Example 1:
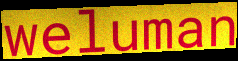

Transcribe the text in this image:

weluman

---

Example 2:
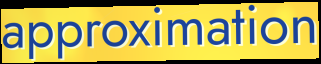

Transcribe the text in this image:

approximation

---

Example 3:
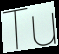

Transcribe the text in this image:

Tu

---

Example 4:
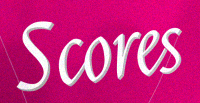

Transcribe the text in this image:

Scores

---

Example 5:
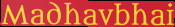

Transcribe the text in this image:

Madhavbhai